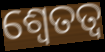
ଶ୍ୱେତତ୍ଵ